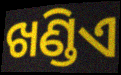
ଖଣ୍ଡିଏ